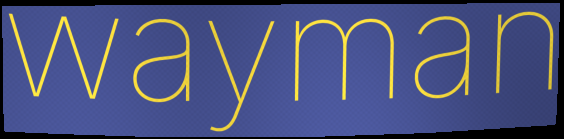
wayman